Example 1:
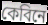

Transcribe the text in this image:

কেবিনে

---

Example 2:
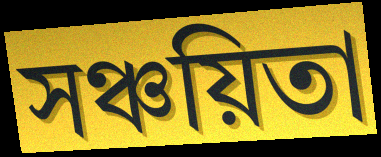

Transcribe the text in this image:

সঞ্চয়িতা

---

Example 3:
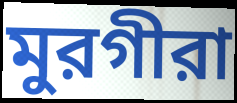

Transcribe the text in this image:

মুরগীরা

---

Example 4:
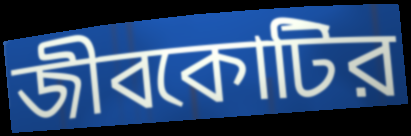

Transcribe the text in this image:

জীবকোটির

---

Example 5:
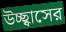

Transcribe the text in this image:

উচ্ছ্বাসের